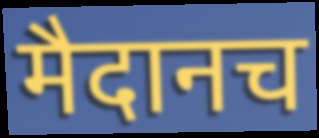
मैदानच